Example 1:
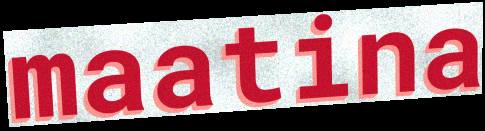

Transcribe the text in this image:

maatina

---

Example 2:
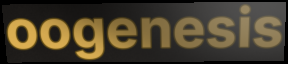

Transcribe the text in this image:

oogenesis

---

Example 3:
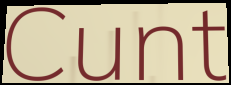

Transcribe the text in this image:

Cunt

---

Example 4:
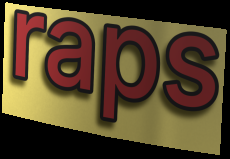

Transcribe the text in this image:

raps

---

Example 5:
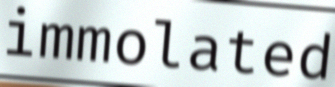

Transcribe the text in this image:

immolated